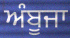
ਅੰਬੂਜਾ